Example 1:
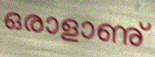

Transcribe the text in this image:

ഒരാളാണു്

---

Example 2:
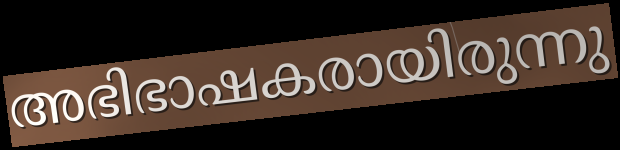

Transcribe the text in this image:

അഭിഭാഷകരായിരുന്നു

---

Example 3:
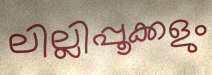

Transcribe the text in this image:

ലില്ലിപ്പൂക്കളും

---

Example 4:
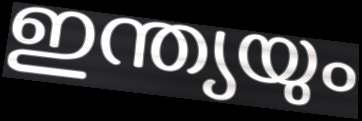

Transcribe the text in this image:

ഇന്ത്യയും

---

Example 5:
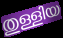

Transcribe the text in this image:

തുള്ളിയ